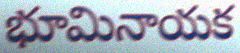
భూమినాయక